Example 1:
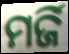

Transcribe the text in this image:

ମର୍ଜି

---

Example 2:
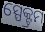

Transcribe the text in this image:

ସ୍ପେକ୍ଟ୍ରମ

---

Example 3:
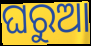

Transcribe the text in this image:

ଘରୁଆ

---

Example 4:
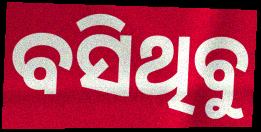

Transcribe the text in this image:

ବସିଥିବୁ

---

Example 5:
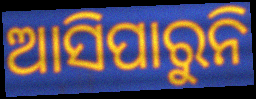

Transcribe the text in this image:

ଆସିପାରୁନି